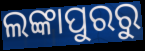
ଲଙ୍କାପୁରରୁ